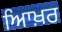
ਆਿਖ਼ਰ